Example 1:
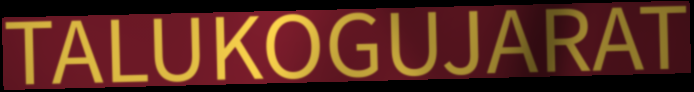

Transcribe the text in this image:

TALUKOGUJARAT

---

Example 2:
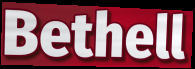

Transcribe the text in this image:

Bethell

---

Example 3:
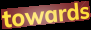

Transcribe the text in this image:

towards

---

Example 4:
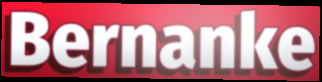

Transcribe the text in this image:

Bernanke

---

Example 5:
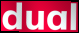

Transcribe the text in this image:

dual